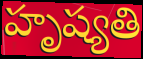
హృష్యతి